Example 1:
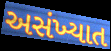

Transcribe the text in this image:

અસંખ્યાત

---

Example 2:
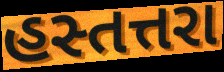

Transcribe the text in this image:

હસ્તત્તરા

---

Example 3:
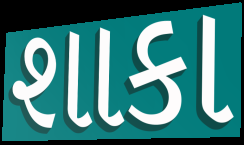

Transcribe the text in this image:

શાકા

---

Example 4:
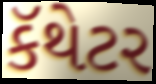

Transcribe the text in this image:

કૅથેટર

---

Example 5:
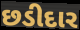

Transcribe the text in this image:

છડીદાર